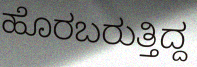
ಹೊರಬರುತ್ತಿದ್ದ